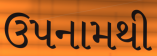
ઉપનામથી